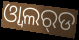
ଓ୍ବାଲର୍‌ଡ